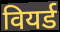
वियर्ड